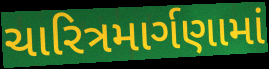
ચારિત્રમાર્ગણામાં